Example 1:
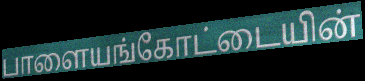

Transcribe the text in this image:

பாளையங்கோட்டையின்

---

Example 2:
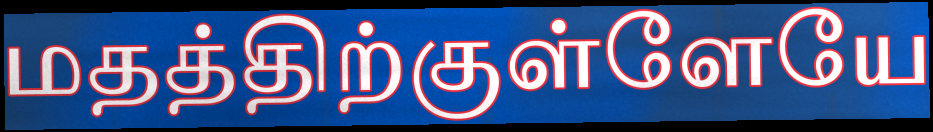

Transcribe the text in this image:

மதத்திற்குள்ளேயே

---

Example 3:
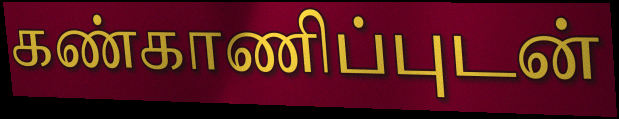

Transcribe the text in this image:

கண்காணிப்புடன்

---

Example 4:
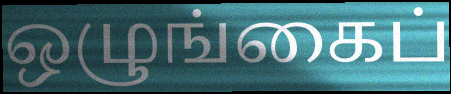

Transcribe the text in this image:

ஒழுங்கைப்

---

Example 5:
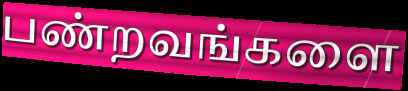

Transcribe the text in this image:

பண்றவங்களை